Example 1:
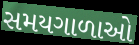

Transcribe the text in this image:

સમયગાળાઓ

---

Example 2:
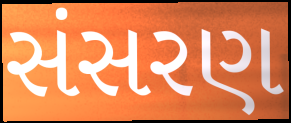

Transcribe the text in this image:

સંસરણ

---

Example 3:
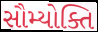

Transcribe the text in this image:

સૌમ્યોક્તિ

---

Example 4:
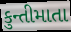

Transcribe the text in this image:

કુન્તીમાતા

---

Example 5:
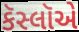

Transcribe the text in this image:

કૅસ્લૉએ